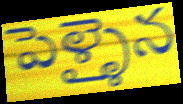
పెళ్ళైన